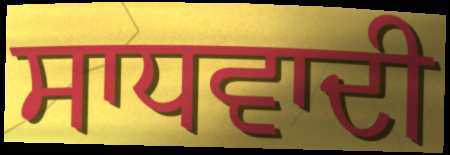
ਸਾਧਵਾਦੀ